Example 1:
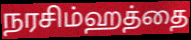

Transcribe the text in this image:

நரசிம்ஹத்தை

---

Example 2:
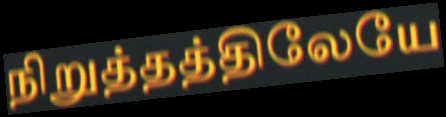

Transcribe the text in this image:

நிறுத்தத்திலேயே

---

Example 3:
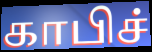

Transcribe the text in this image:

காபிச்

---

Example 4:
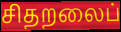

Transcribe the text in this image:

சிதறலைப்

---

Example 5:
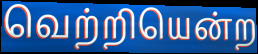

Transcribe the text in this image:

வெற்றியென்ற